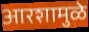
आरशामुळे